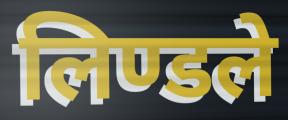
लिण्डले